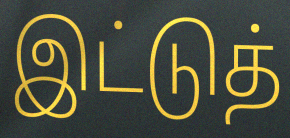
இட்டுத்